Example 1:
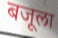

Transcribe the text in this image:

बजूला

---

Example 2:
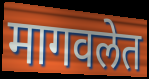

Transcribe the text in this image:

मागवलेत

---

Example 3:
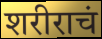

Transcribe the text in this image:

शरीराचं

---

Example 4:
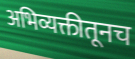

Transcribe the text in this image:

अभिव्यक्तीतूनच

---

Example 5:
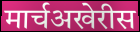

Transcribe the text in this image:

मार्चअखेरीस